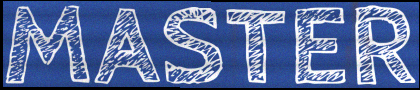
MASTER